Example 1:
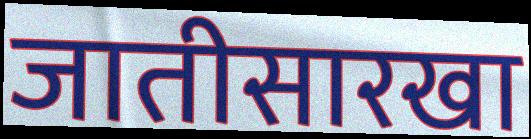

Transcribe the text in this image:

जातीसारखा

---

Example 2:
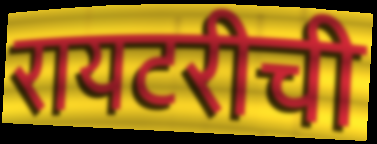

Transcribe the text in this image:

रायटरीची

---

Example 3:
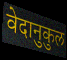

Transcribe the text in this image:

वेदानुकुल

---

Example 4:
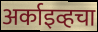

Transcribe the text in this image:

अर्काइव्हचा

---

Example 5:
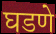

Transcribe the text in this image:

घडणे